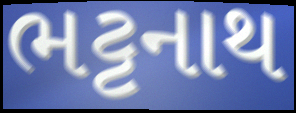
ભટ્ટનાથ